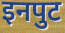
इनपुट